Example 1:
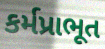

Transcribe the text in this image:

કર્મપ્રાભૂત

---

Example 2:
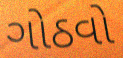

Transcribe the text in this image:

ગોઠવો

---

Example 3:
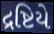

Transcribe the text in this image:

દ્રષ્ટિયે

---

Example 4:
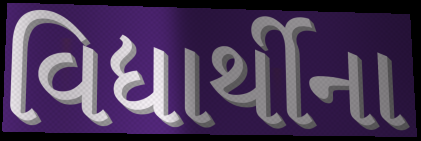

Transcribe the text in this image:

વિદ્યાર્થીના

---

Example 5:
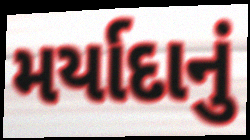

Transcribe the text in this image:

મર્યાદાનું